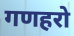
गणहरो